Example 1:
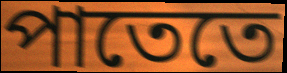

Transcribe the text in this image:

পাতেতে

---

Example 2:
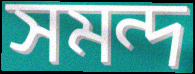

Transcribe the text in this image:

সমন্দ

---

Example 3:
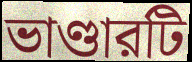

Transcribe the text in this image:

ভাণ্ডারটি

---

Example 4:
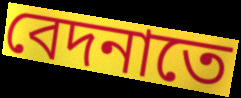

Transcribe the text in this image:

বেদনাতে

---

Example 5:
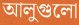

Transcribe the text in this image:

আলুগুলো